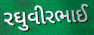
રઘુવીરભાઈ